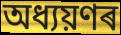
অধ্যয়ণৰ